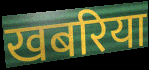
खबरिया